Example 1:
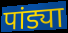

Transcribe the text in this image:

पांड्या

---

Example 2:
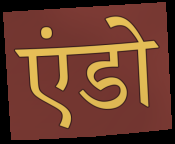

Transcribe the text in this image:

एंडो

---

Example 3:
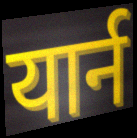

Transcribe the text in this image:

यार्न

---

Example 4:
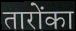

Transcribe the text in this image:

तारोंका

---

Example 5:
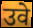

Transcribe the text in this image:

उवे